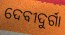
ଦେବୀଦୁର୍ଗା